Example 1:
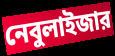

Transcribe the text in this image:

নেবুলাইজার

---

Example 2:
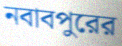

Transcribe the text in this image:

নবাবপুরের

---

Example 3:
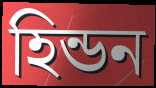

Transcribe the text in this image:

হিন্ডন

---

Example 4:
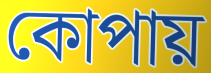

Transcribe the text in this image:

কোপায়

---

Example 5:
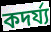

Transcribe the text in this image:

কদর্য্য